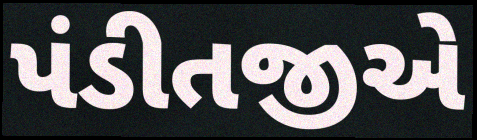
પંડીતજીએ